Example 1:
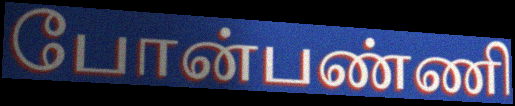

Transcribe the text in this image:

போன்பண்ணி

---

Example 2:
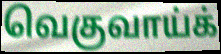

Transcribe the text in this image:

வெகுவாய்க்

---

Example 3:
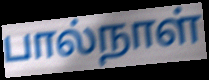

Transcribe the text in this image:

பால்நாள்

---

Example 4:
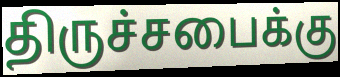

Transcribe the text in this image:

திருச்சபைக்கு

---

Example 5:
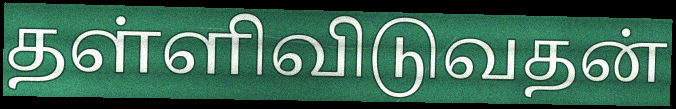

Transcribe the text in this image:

தள்ளிவிடுவதன்